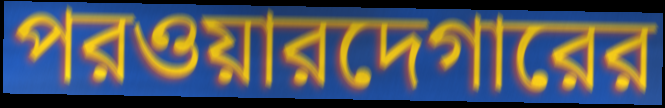
পরওয়ারদেগারের